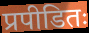
प्रपीडितः